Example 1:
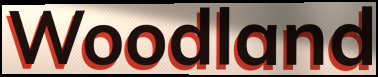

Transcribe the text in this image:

Woodland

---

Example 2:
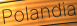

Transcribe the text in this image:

Polandia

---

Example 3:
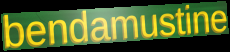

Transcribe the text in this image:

bendamustine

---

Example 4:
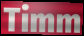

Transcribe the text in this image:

Timm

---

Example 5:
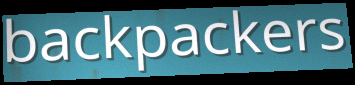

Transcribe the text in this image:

backpackers